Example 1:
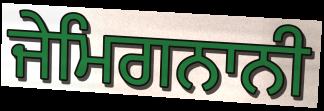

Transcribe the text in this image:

ਜੇਮਿਗਨਾਨੀ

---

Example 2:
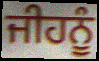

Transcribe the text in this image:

ਜੀਹਨੂੰ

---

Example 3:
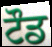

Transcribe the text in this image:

ਟੌਡ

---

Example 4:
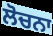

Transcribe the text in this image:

ਲੋਚਨਾ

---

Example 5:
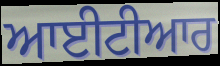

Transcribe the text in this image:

ਆਈਟੀਆਰ